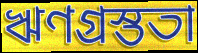
ঋণগ্রস্ততা